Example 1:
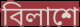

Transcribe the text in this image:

বিলাশে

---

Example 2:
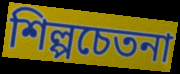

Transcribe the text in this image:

শিল্পচেতনা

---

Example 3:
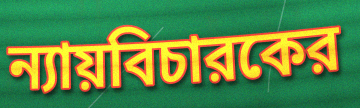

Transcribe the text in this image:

ন্যায়বিচারকের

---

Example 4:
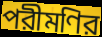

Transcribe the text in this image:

পরীমণির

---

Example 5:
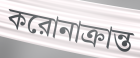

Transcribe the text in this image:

করোনাক্রান্ত